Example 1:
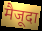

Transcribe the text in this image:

मैजूदा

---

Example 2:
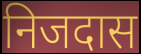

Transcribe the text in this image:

निजदास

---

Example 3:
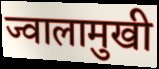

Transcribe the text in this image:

ज्वालामुखी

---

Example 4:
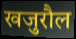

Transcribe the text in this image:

खजुरौल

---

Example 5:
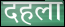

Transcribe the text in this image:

दहला